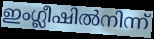
ഇംഗ്ലീഷിൽനിന്ന്